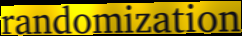
randomization